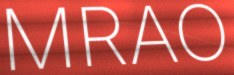
MRAO